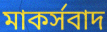
মাকর্সবাদ